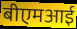
बीएमआई